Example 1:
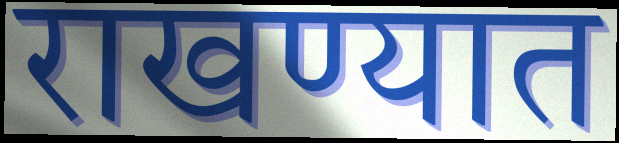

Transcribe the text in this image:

राखण्यात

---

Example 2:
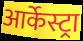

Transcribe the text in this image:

आर्केस्ट्रा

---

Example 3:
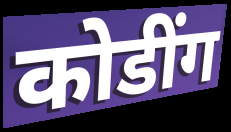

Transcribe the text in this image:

कोडींग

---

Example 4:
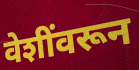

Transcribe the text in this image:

वेशींवरून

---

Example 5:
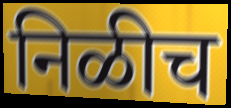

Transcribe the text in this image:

निळीच